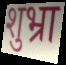
शुभ्रा